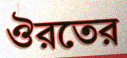
ঔরতের